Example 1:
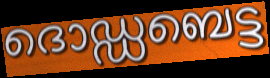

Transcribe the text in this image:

ദൊഡ്ഡബെട്ട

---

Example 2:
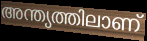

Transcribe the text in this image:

അന്ത്യത്തിലാണ്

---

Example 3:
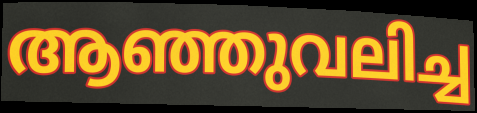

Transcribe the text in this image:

ആഞ്ഞുവലിച്ച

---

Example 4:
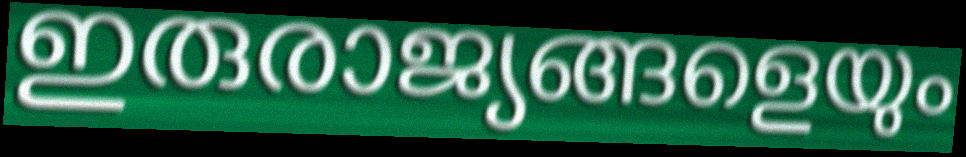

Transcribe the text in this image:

ഇരുരാജ്യങ്ങളെയും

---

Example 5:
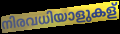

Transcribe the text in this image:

നിരവധിയാളുകള്